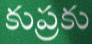
కుప్రకు